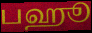
பஹூ